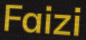
Faizi